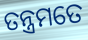
ତନ୍ତ୍ରମତେ